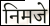
निमजे